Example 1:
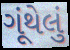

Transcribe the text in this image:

ગૂંથેલું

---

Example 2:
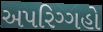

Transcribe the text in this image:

અપરિગ્ગહો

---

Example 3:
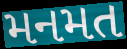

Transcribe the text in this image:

મનમત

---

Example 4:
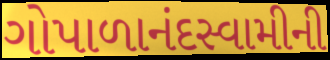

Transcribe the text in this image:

ગોપાળાનંદસ્વામીની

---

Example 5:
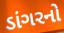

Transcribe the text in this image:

ડાંગરનો